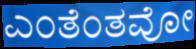
ಎಂತೆಂತವೋ